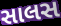
સાલસ